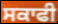
ਸਕਾਫੀ